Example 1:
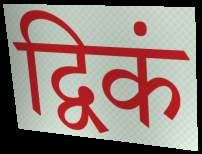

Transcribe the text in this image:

द्विकं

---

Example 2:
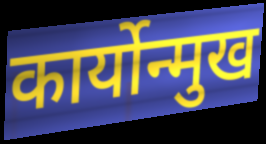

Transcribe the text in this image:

कार्योन्मुख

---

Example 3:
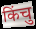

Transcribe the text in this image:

किंचु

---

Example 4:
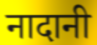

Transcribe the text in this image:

नादानी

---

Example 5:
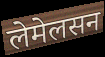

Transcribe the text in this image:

लेमेलसन